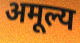
अमूल्य